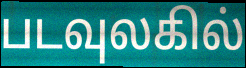
படவுலகில்